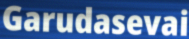
Garudasevai